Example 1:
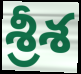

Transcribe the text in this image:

శ్రీశ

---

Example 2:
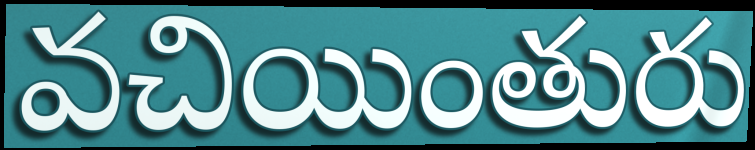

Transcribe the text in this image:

వచియింతురు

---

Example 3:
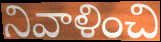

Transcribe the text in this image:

నివాళించి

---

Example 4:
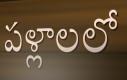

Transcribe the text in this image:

పళ్లాలలో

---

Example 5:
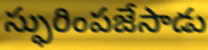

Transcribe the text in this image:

స్ఫురింపజేసాడు